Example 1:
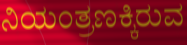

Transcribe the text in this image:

ನಿಯಂತ್ರಣಕ್ಕಿರುವ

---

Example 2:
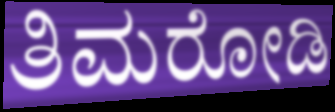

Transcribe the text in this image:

ತಿಮರೋಡಿ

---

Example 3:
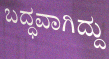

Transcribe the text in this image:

ಬದ್ಧವಾಗಿದ್ದು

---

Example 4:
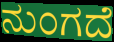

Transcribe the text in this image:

ನುಂಗದೆ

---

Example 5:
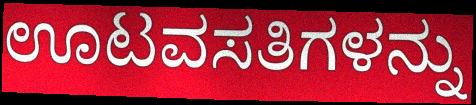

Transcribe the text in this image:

ಊಟವಸತಿಗಳನ್ನು